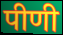
पीणी